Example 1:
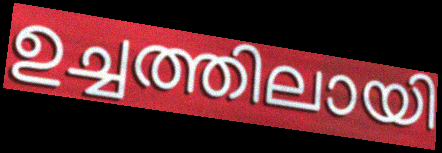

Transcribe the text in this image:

ഉച്ചത്തിലായി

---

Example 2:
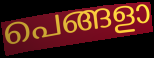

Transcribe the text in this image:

പെങ്ങളാ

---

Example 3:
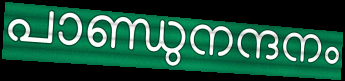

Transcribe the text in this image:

പാണ്ഡുനന്ദനം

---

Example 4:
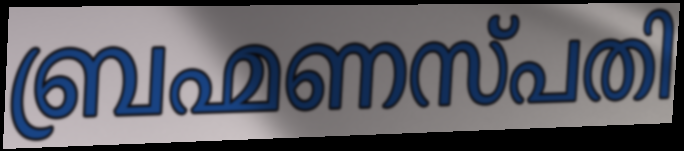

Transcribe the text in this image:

ബ്രഹ്മണസ്പതി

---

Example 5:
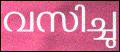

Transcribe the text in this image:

വസിച്ചു